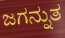
ಜಗನ್ನುತ